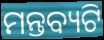
ମନ୍ତବ୍ୟଟି